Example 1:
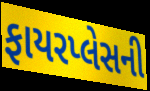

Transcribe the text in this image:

ફાયરપ્લેસની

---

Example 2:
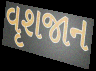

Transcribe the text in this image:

વૃશજાન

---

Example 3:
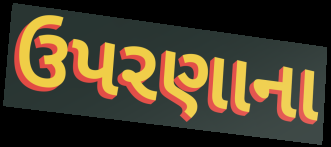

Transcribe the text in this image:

ઉપરણાના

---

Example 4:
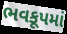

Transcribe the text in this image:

ભવકૂપમાં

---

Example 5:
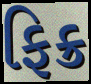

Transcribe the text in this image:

ફિક્ર